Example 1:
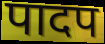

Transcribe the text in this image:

पादप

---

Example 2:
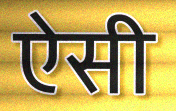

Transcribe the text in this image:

ऐसी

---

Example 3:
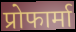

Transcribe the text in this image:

प्रोफार्मा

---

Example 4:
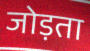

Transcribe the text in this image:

जोड़ता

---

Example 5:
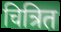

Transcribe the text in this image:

चित्रित